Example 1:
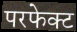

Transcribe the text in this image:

परफेक्ट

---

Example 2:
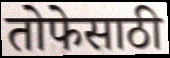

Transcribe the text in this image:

तोफेसाठी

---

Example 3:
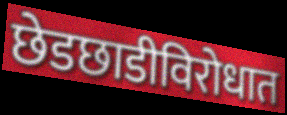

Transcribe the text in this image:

छेडछाडीविरोधात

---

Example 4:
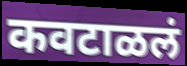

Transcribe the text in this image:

कवटाळलं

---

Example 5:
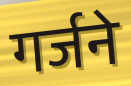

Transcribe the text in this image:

गर्जने